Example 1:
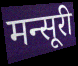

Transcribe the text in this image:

मन्सूरी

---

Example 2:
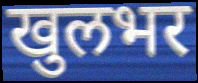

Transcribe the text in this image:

खुलभर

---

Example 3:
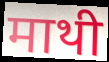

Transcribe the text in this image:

माथी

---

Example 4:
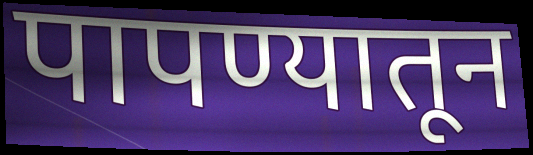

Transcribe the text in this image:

पापण्यातून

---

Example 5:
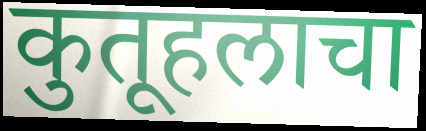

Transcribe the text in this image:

कुतूहलाचा